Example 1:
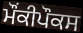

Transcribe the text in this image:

ਮੌਂਕੀਪੌਕਸ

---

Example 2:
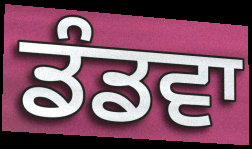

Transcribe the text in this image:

ਡੰਡਵਾ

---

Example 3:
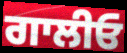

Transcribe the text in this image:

ਗਾਲੀਓ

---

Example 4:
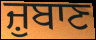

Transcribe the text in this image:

ਜ਼ੁਬਾਣ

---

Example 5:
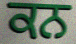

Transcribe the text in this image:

ਕਨ